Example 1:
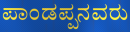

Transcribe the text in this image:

ಪಾಂಡಪ್ಪನವರು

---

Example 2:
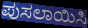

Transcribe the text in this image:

ಪುಸಲಾಯಿಸಿ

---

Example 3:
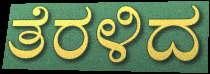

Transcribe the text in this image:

ತೆರಳಿದ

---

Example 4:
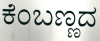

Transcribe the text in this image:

ಕೆಂಬಣ್ಣದ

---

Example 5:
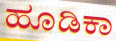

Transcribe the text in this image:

ಹೂಡಿಕಾ